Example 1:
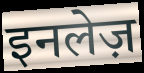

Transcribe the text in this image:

इनलेज़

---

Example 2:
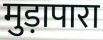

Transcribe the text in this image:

मुड़ापारा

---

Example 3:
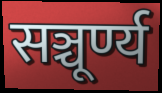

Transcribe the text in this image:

सञ्चूर्ण्य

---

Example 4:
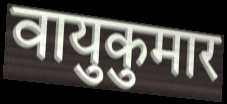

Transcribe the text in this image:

वायुकुमार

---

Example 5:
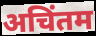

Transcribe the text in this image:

अचिंतम